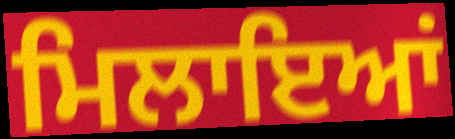
ਮਿਲਾਇਆਂ